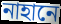
নাহানে